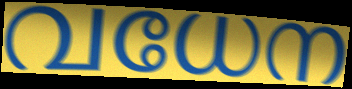
വധേന